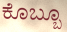
ಕೊಬ್ಬೂ